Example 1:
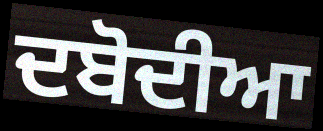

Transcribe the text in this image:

ਦਬੋਦੀਆ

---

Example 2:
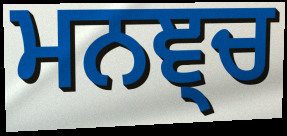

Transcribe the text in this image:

ਮਨਞ੍ਚ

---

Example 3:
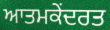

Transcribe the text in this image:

ਆਤਮਕੇਂਦਰਤ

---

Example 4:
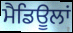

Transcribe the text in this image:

ਮੈਡਿਊਲਾਂ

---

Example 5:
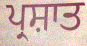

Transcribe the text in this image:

ਪ੍ਰਸ਼ਾਤ